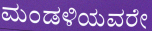
ಮಂಡಳಿಯವರೇ